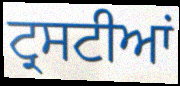
ਟ੍ਰਸਟੀਆਂ